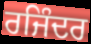
ਰਜਿੰਦਰ